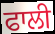
ਫਾਲੀ